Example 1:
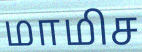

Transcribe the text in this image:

மாமிச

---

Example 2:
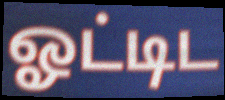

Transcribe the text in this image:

ஓட்டிட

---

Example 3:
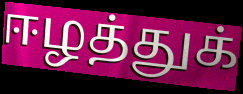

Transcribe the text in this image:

ஈழத்துக்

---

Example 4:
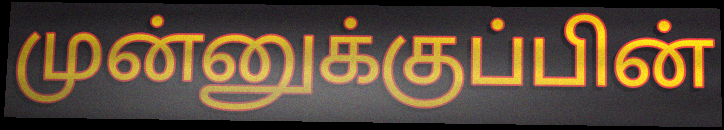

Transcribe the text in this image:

முன்னுக்குப்பின்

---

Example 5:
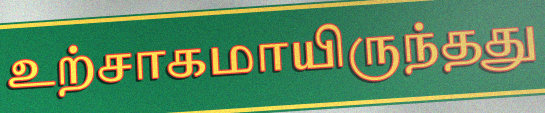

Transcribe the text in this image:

உற்சாகமாயிருந்தது